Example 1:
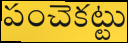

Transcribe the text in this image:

పంచెకట్టు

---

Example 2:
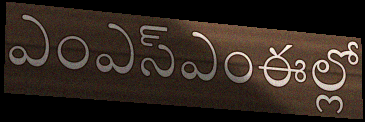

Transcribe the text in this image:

ఎంఎస్ఎంఈల్లో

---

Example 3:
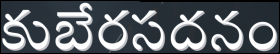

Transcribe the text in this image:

కుబేరసదనం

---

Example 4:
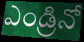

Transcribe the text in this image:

ఎండ్రినో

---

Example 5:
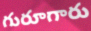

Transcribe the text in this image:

గురూగారు